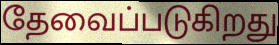
தேவைப்படுகிறது